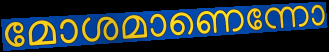
മോശമാണെന്നോ